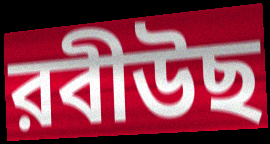
রবীউছ